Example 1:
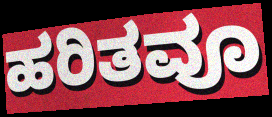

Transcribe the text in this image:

ಹರಿತವೂ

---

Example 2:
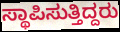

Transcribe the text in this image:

ಸ್ಥಾಪಿಸುತ್ತಿದ್ದರು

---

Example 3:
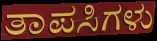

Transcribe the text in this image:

ತಾಪಸಿಗಳು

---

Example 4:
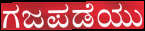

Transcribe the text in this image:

ಗಜಪಡೆಯು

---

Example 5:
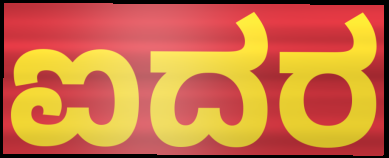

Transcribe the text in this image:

ಐದರ